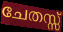
ചേതസ്സ്